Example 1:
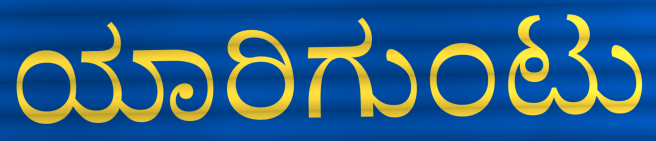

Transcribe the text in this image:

ಯಾರಿಗುಂಟು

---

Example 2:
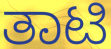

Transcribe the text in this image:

ತಾಟಿ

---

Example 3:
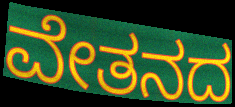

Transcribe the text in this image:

ವೇತನದ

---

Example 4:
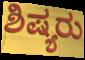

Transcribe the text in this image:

ಶಿಷ್ಯರು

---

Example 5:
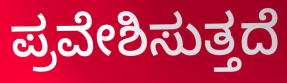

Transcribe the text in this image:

ಪ್ರವೇಶಿಸುತ್ತದೆ